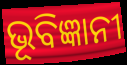
ଭୂବିଜ୍ଞାନୀ